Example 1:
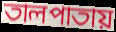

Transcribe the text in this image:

তালপাতায়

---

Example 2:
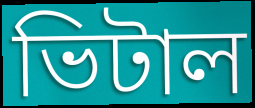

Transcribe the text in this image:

ভিটাল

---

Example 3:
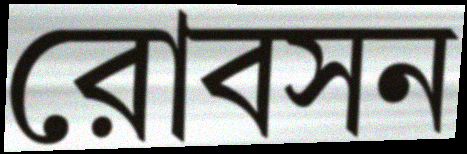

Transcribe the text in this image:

রোবসন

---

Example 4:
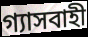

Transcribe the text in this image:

গ্যাসবাহী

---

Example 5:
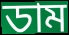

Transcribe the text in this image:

ডাম